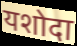
यशोदा